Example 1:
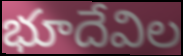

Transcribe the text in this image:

భూదేవిల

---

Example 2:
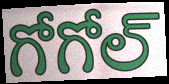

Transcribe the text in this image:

గోగోల్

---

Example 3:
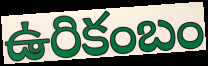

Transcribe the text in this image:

ఉరికంబం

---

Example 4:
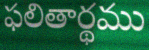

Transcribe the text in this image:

ఫలితార్థము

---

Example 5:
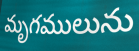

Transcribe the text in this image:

మృగములును